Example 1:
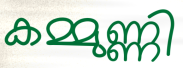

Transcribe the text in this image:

കമ്മുണ്ണി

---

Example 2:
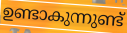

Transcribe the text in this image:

ഉണ്ടാകുന്നുണ്ട്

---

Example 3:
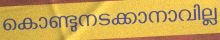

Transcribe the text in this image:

കൊണ്ടുനടക്കാനാവില്ല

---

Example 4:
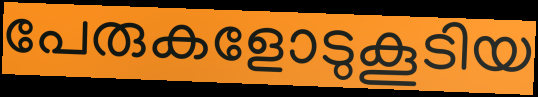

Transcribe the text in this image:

പേരുകളോടുകൂടിയ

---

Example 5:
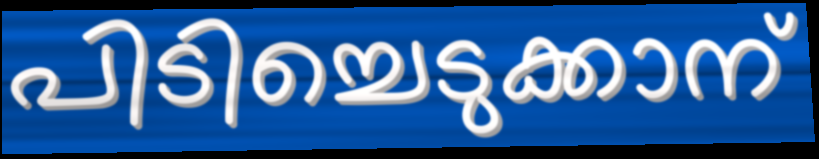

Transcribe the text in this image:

പിടിച്ചെടുക്കാന്